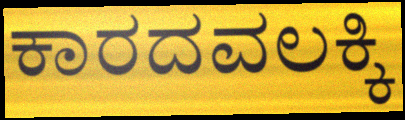
ಕಾರದವಲಕ್ಕಿ